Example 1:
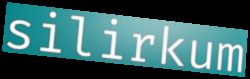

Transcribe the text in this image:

silirkum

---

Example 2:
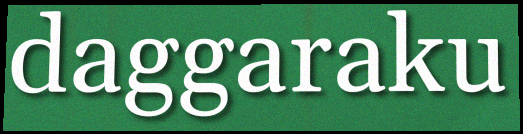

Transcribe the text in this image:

daggaraku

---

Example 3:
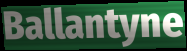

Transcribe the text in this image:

Ballantyne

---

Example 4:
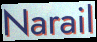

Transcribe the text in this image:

Narail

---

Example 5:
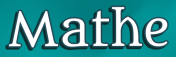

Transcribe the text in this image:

Mathe